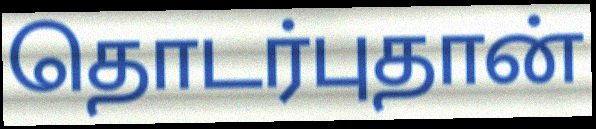
தொடர்புதான்